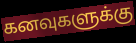
கனவுகளுக்கு